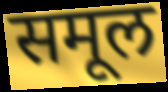
समूल